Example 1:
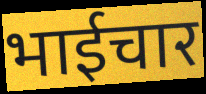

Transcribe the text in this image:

भाईचार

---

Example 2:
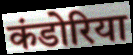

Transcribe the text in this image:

कंडोरिया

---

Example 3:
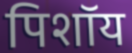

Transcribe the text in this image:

पिशॉय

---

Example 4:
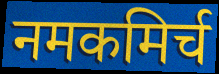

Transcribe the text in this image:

नमकमिर्च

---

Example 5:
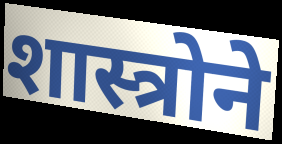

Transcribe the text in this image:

शास्त्रोने